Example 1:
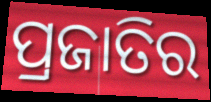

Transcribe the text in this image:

ପ୍ରଜାତିର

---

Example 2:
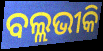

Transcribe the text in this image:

ବଲ୍ଲଭୀକି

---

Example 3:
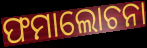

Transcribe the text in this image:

ଫମାଲୋଚନା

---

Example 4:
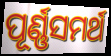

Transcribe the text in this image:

ପୂର୍ଣ୍ଣସମର୍ଥ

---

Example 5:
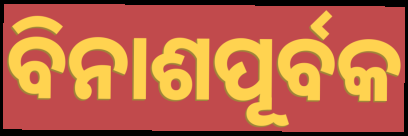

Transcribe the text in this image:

ବିନାଶପୂର୍ବକ